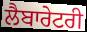
ਲੈਬਾਰੇਟਰੀ